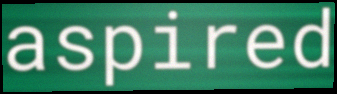
aspired